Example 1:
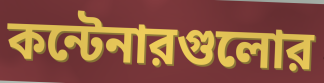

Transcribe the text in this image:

কন্টেনারগুলোর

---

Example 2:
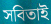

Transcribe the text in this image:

সবিতাই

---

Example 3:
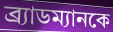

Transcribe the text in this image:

ব্র্যাডম্যানকে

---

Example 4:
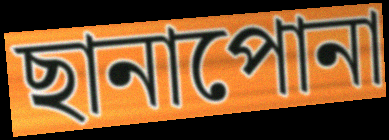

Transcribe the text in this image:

ছানাপোনা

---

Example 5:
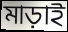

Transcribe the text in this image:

মাড়াই